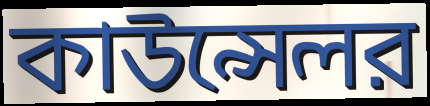
কাউন্সেলর